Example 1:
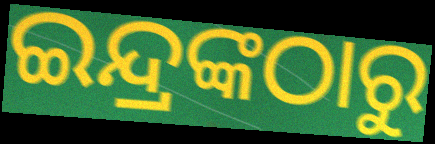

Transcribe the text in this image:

ଇନ୍ଦ୍ରଙ୍କଠାରୁ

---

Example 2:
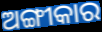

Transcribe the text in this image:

ଅଙ୍ଗୀକାର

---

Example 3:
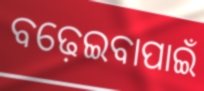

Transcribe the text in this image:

ବଢ଼େଇବାପାଇଁ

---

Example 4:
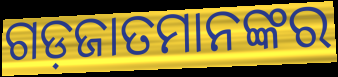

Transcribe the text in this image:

ଗଡ଼ଜାତମାନଙ୍କର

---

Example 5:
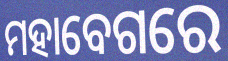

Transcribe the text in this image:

ମହାବେଗରେ